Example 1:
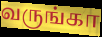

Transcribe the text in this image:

வருங்கா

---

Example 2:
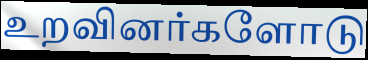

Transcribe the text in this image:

உறவினர்களோடு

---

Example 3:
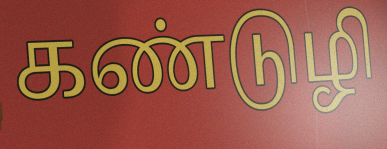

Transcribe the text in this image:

கண்டுழி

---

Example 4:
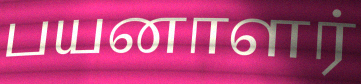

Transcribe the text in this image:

பயனாளர்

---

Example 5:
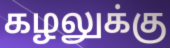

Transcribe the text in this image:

கழலுக்கு